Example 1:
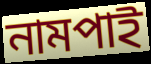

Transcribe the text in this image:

নামপাই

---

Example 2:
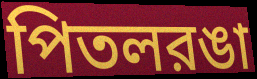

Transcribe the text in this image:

পিতলরঙা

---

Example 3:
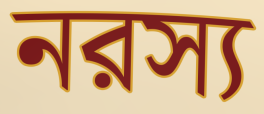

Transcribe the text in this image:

নরস্য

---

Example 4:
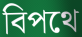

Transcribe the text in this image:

বিপথে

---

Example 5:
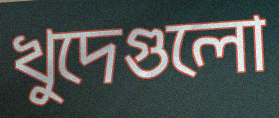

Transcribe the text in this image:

খুদেগুলো